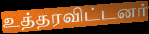
உத்தரவிட்டனர்